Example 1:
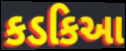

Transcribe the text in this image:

કડકિઆ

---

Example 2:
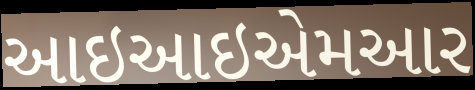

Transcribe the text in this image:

આઇઆઇએમઆર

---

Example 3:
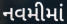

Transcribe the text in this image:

નવમીમાં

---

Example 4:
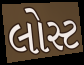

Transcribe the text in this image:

લોસ્ટ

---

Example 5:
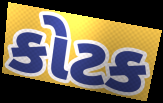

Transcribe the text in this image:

કોટક